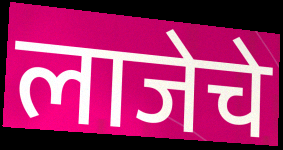
लाजेचे